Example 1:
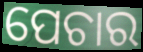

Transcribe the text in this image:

ପେଚାର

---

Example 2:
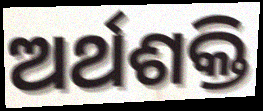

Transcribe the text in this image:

ଅର୍ଥଶକ୍ତି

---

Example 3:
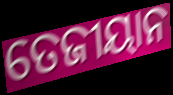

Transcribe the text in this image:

ତେଜୀୟାନ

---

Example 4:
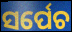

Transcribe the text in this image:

ସର୍ପେଚ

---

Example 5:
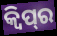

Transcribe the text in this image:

କ୍ଵିପ୍‌ର